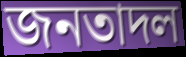
জনতাদল